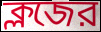
ক্লজের